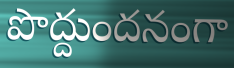
పొద్దుందనంగా